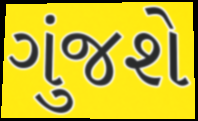
ગુંજશે